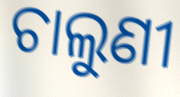
ଚାଲୁଣୀ